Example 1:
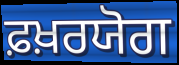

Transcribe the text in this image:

ਫ਼ਖ਼ਰਯੋਗ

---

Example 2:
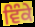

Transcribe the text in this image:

ਵਿੰਕੇ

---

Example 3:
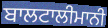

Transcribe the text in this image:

ਬਾਲਟਾਲੀਮਾਨੀ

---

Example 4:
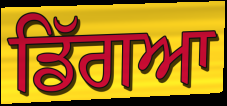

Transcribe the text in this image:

ਡਿੱਗਆ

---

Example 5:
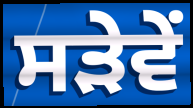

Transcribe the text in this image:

ਸੜੇਵੇਂ